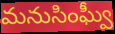
మనుసింఘ్వీ